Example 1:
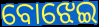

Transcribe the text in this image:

ବୋଝେଇ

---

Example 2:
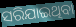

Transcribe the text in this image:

ସରିଯାଇଥିବା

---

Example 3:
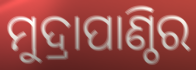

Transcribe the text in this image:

ମୁଦ୍ରାପାଣ୍ଠିର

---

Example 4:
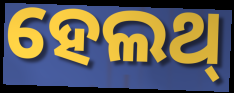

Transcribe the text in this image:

ହେଲଥ୍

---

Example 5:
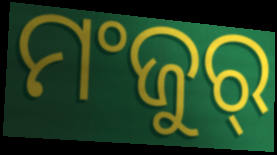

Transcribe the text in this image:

ମଂଜୁର୍